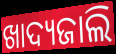
ଖାଦ୍ୟଜାଲି